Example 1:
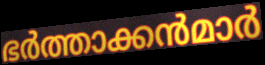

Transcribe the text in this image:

ഭർത്താക്കൻമാർ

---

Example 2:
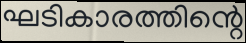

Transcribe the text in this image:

ഘടികാരത്തിന്റെ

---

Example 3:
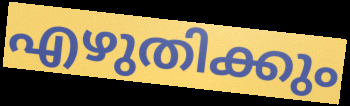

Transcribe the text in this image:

എഴുതിക്കും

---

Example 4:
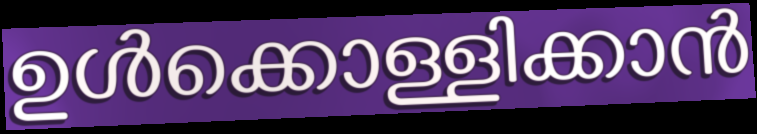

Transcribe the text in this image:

ഉൾക്കൊള്ളിക്കാൻ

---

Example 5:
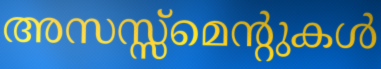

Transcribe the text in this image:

അസസ്സ്മെന്റുകൾ